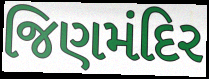
જિણમંદિર